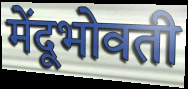
मेंदूभोवती